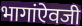
भागांऐवजी